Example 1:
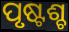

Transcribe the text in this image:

ପୃଷ୍ଟଶ୍ଚ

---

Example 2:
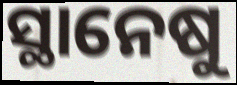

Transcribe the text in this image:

ସ୍ଥାନେଷୁ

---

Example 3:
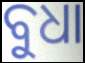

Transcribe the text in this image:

ବୁଧା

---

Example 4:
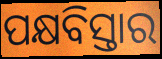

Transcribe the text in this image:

ପକ୍ଷବିସ୍ତାର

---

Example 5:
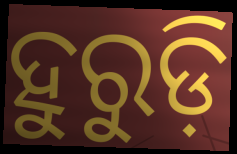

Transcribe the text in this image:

ହୁରୁଡ଼ି